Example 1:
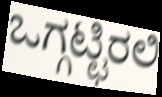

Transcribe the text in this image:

ಒಗ್ಗಟ್ಟಿರಲಿ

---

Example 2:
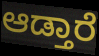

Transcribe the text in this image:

ಆಡ್ತಾರೆ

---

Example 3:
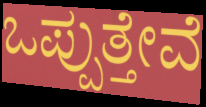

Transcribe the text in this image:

ಒಪ್ಪುತ್ತೇವೆ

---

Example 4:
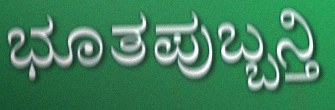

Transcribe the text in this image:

ಭೂತಪುಬ್ಬನ್ತಿ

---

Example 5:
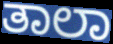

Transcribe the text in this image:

ತಾಲಾ